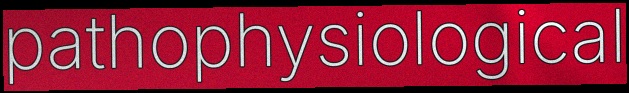
pathophysiological